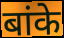
बांके